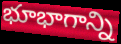
భూభాగాన్ని